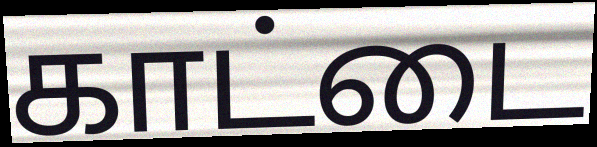
காட்டை